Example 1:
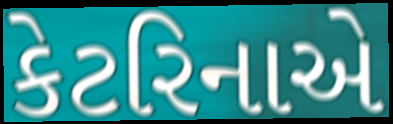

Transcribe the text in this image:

કેટરિનાએ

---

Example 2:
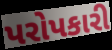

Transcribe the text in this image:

પરોપકારી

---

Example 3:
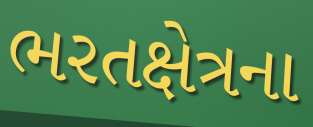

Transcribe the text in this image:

ભરતક્ષેત્રના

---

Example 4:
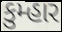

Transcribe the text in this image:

કુમ્હાર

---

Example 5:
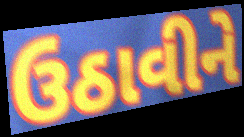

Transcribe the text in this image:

ઉઠાવીને